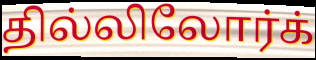
தில்லிலோர்க்